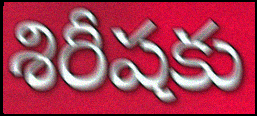
శిరీషకు